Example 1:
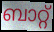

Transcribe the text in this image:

ബാറ്റ്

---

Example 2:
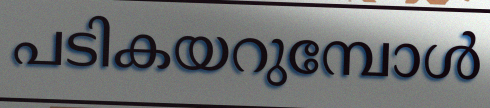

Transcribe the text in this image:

പടികയറുമ്പോൾ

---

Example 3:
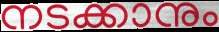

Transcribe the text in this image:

നടക്കാനും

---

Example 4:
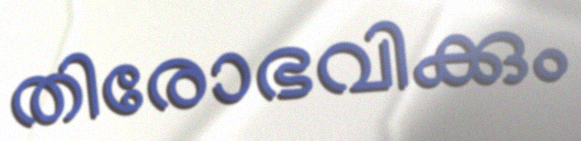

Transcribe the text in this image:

തിരോഭവിക്കും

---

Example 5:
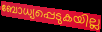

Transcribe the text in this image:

ബോധ്യപ്പെടുകയില്ല